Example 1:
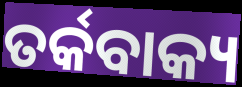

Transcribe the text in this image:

ତର୍କବାକ୍ୟ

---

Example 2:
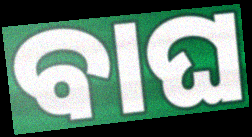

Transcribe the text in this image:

ବାଘ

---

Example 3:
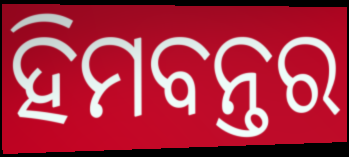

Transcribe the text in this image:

ହିମବନ୍ତର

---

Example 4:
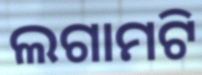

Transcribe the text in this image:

ଲଗାମଟି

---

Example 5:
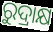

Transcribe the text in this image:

ରୁଦ୍ରାକ୍ଷ